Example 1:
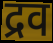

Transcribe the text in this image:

द्रव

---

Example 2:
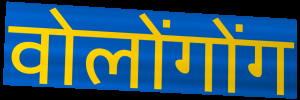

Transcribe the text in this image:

वोलोंगोंग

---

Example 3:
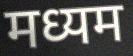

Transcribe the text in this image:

मध्यम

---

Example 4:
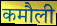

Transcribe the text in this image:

कमौली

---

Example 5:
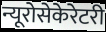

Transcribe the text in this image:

न्यूरोसेकेरेटरी